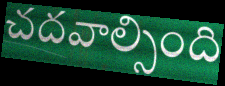
చదవాల్సింది